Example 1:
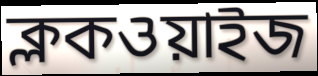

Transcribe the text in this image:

ক্লকওয়াইজ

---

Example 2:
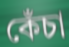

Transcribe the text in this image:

কেঁচা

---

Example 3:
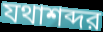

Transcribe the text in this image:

যথাশব্দর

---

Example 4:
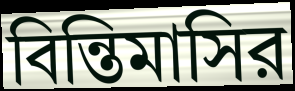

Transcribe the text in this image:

বিন্তিমাসির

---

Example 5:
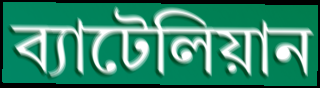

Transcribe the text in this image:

ব্যাটেলিয়ান